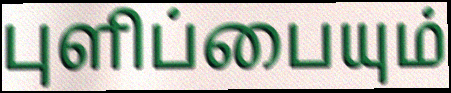
புளிப்பையும்